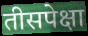
तीसपेक्षा